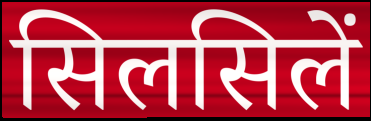
सिलसिलें